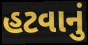
હટવાનું